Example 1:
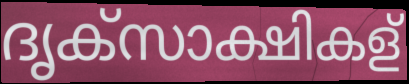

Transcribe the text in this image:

ദൃക്സാക്ഷികള്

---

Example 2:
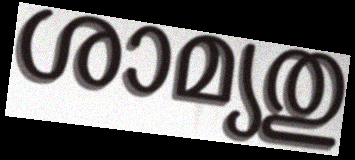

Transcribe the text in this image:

ശാമ്യതു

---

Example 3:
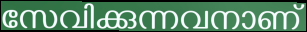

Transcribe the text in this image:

സേവിക്കുന്നവനാണ്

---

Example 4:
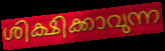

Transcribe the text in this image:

ശിക്ഷിക്കാവുന്ന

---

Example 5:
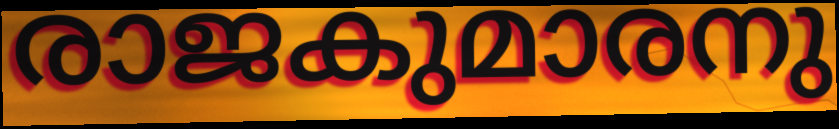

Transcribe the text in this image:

രാജകുമാരനു